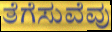
ತೆಗೆಸುವೆವು